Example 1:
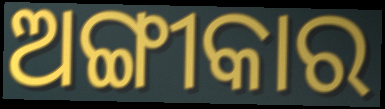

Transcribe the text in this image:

ଅଙ୍ଗୀକାର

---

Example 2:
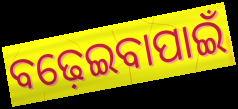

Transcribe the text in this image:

ବଢ଼େଇବାପାଇଁ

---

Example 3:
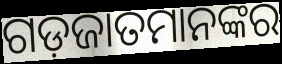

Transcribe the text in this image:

ଗଡ଼ଜାତମାନଙ୍କର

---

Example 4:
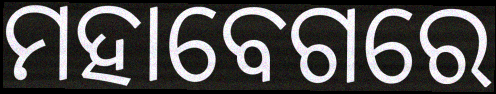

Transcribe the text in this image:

ମହାବେଗରେ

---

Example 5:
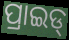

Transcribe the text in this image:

ପ୍ରାଇଡ୍